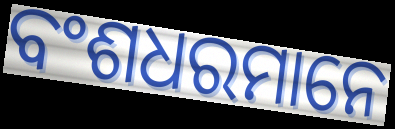
ବଂଶଧରମାନେ